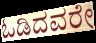
ಓಡಿದವರೇ